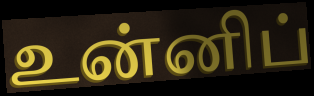
உன்னிப்